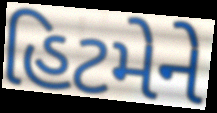
હિટમેને